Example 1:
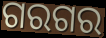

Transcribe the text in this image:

ଗରଗର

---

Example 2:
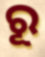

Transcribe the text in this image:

ରୂ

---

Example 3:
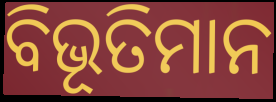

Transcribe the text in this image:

ବିଭୂତିମାନ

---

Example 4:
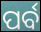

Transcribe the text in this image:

ପର୍ବ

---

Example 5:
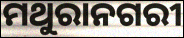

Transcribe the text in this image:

ମଥୁରାନଗରୀ